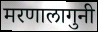
मरणालागुनी